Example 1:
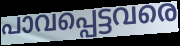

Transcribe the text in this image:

പാവപ്പെട്ടവരെ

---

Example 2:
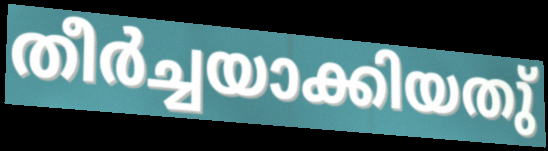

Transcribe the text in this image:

തീർച്ചയാക്കിയതു്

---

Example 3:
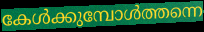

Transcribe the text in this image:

കേൾക്കുമ്പോൾത്തന്നെ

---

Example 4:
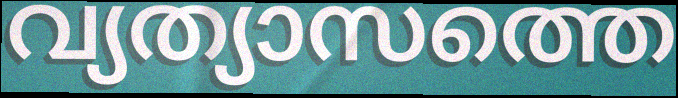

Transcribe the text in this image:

വ്യത്യാസത്തെ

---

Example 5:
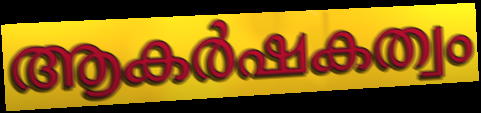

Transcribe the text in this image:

ആകർഷകത്വം